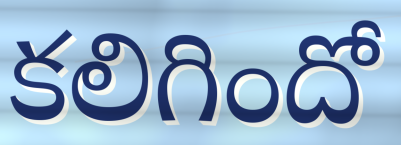
కలిగిందో